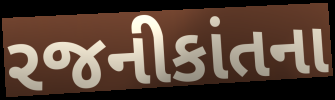
રજનીકાંતના